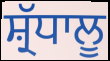
ਸ਼੍ਰੱਧਾਲੂ